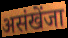
असंखेंजा